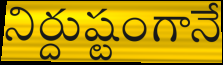
నిర్దుష్టంగానే